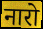
नारो